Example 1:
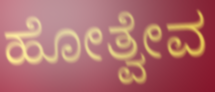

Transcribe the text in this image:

ಹೋತ್ವೇವ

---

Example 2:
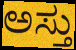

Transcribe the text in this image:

ಅಸ್ತು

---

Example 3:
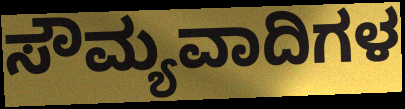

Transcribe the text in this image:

ಸೌಮ್ಯವಾದಿಗಳ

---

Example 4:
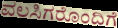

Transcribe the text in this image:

ವಲಸಿಗರೊಂದಿಗೆ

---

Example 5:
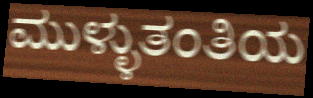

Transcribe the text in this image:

ಮುಳ್ಳುತಂತಿಯ